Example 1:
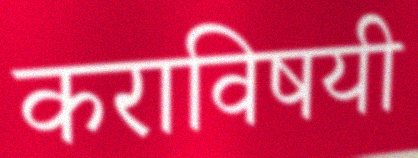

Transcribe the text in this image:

कराविषयी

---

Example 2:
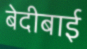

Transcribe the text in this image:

बेदीबाई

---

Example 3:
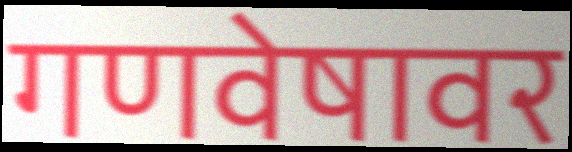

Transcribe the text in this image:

गणवेषावर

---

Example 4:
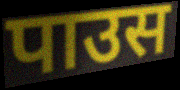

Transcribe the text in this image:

पाउस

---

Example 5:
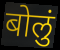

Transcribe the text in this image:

बोलुं